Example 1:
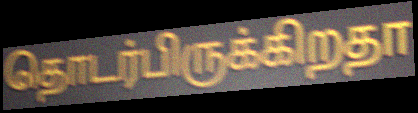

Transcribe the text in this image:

தொடர்பிருக்கிறதா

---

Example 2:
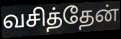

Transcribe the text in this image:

வசித்தேன்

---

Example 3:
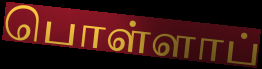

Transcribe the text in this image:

பொள்ளாப்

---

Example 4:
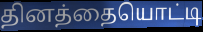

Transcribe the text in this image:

தினத்தையொட்டி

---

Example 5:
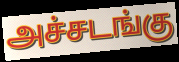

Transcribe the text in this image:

அச்சடங்கு